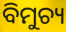
ବିମୁଚ୍ୟ